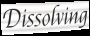
Dissolving